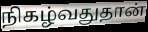
நிகழ்வதுதான்